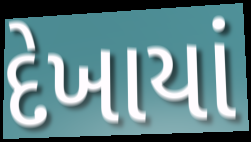
દેખાયાં